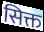
सिक्त